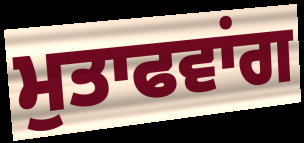
ਮੁਤਾਫਵਾਂਗ